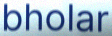
bholar